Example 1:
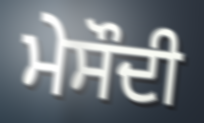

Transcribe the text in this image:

ਮੇਸੌਦੀ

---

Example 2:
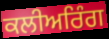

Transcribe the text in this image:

ਕਲੀਅਰਿੰਗ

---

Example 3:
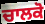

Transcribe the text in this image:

ਚਾਲਕੋ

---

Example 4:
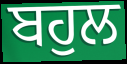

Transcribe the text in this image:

ਬਹੁਲ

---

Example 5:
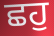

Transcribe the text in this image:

ਛਹੁ